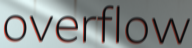
overflow